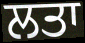
ਲਤਾ